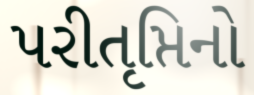
પરીતૃપ્તિનો